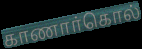
காணார்கொல்